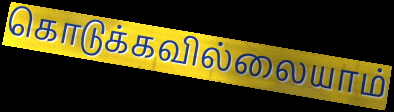
கொடுக்கவில்லையாம்